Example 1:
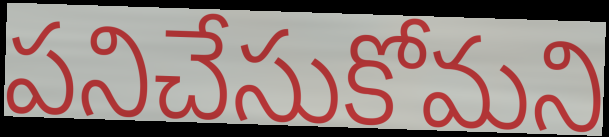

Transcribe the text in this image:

పనిచేసుకోమని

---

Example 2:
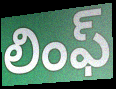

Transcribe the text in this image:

లింఫ్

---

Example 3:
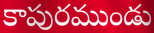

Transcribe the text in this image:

కాపురముండు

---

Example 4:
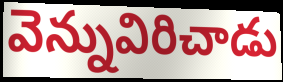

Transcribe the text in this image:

వెన్నువిరిచాడు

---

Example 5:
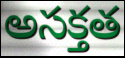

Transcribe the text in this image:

అసక్తత